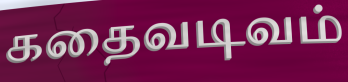
கதைவடிவம்